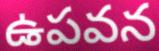
ఉపవన